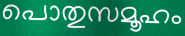
പൊതുസമൂഹം